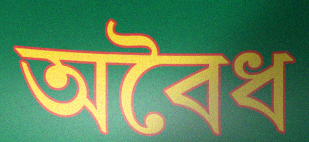
অবৈধ